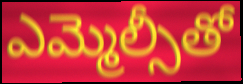
ఎమ్మెల్సీతో